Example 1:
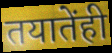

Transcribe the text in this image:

तयातेंही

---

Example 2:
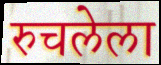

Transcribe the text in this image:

रुचलेला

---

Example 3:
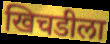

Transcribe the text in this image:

खिचडीला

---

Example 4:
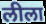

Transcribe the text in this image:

लीला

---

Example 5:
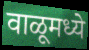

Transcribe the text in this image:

वाळूमध्ये